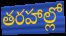
తరహాల్లో